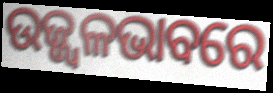
ଉଜ୍ଜ୍ୱଳଭାବରେ